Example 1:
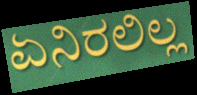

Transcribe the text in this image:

ಏನಿರಲಿಲ್ಲ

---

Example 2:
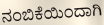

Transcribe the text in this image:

ನಂಬಿಕೆಯಿಂದಾಗಿ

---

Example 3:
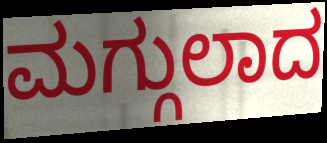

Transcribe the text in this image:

ಮಗ್ಗುಲಾದ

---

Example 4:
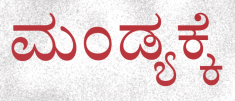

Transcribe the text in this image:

ಮಂಡ್ಯಕ್ಕೆ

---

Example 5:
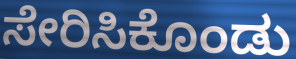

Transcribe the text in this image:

ಸೇರಿಸಿಕೊಂಡು